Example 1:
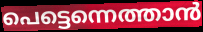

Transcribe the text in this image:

പെട്ടെന്നെത്താൻ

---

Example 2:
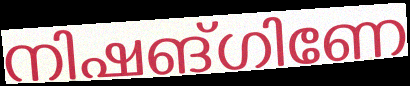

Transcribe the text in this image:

നിഷങ്ഗിണേ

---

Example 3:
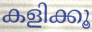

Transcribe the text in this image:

കളിക്കൂ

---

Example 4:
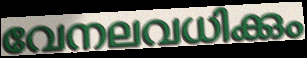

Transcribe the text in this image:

വേനലവധിക്കും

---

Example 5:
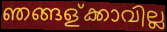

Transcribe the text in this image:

ഞങ്ങള്ക്കാവില്ല